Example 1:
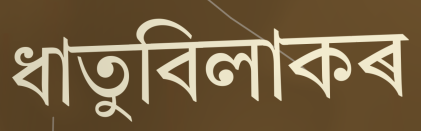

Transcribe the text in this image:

ধাতুবিলাকৰ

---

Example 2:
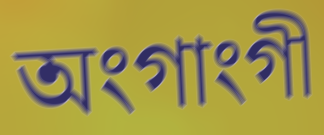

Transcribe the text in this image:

অংগাংগী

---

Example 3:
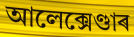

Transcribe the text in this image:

আলেক্সেণ্ডাৰ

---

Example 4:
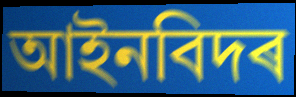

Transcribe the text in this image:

আইনবিদৰ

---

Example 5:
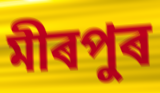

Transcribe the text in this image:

মীৰপুৰ